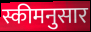
स्कीमनुसार